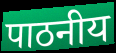
पाठनीय